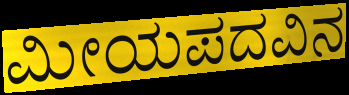
ಮೀಯಪದವಿನ